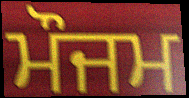
ਮੌਜਮ